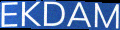
EKDAM